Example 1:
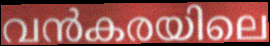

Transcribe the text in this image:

വൻകരയിലെ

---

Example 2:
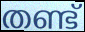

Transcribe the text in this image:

തണ്ട്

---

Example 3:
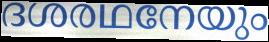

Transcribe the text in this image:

ദശരഥനേയും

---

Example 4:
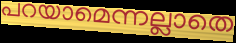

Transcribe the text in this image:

പറയാമെന്നല്ലാതെ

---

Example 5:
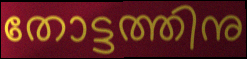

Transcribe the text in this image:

തോട്ടത്തിനു